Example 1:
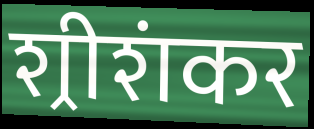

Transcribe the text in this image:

श्रीशंकर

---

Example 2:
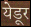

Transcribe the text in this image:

येडूर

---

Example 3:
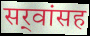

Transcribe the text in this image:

सर्वांसह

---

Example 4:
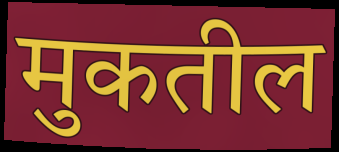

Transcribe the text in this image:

मुकतील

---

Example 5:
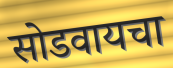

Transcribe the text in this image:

सोडवायचा